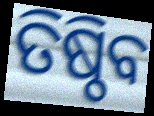
ତିଷ୍ଠିବ